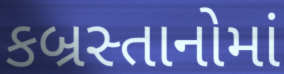
કબ્રસ્તાનોમાં